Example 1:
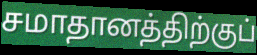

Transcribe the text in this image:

சமாதானத்திற்குப்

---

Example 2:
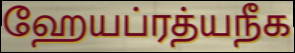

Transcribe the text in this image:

ஹேயப்ரத்யநீக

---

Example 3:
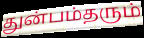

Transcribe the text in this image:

துன்பம்தரும்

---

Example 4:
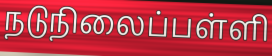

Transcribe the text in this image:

நடுநிலைப்பள்ளி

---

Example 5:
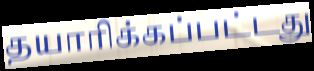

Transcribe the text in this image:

தயாரிக்கப்பட்டது